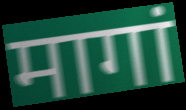
मागां